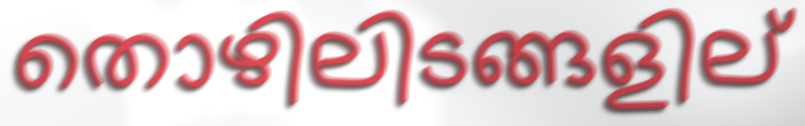
തൊഴിലിടങ്ങളില്